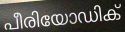
പീരിയോഡിക്